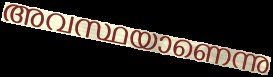
അവസ്ഥയാണെന്നു